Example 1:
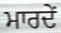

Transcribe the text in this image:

ਮਾਰਦੇਂ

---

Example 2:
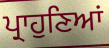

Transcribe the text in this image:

ਪ੍ਰਾਹੁਣਿਆਂ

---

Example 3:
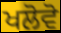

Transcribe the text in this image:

ਖਲੋਵੋ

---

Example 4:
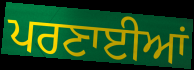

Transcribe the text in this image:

ਪਰਣਾਈਆਂ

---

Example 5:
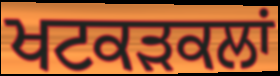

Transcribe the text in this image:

ਖਟਕੜਕਲਾਂ